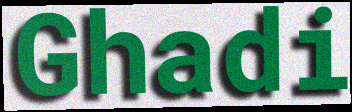
Ghadi